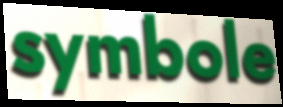
symbole